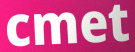
cmet